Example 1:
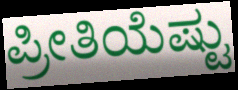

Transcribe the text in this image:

ಪ್ರೀತಿಯೆಷ್ಟು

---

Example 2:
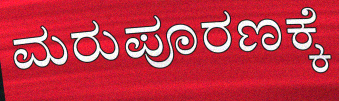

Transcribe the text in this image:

ಮರುಪೂರಣಕ್ಕೆ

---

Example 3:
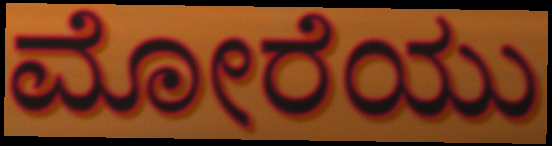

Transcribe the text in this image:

ಮೋರೆಯು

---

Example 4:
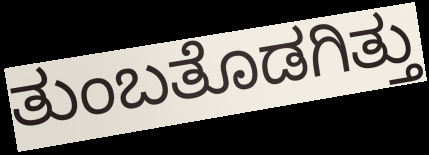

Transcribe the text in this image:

ತುಂಬತೊಡಗಿತ್ತು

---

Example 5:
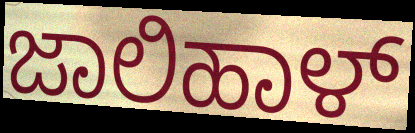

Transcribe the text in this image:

ಜಾಲಿಹಾಳ್